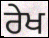
ਰੇਖ